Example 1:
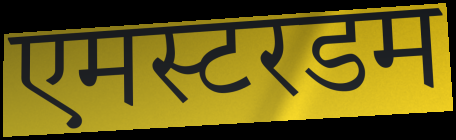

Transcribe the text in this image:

एमस्टरडम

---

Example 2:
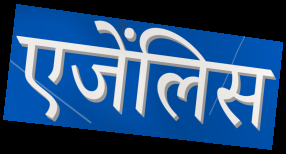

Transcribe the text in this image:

एजेंलिस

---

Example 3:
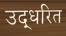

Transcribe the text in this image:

उद्धरित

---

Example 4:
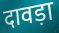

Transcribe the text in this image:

दावड़ा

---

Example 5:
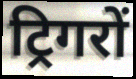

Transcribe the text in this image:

ट्रिगरों